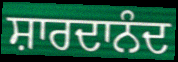
ਸ਼ਾਰਦਾਨੰਦ